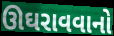
ઊઘરાવવાનો